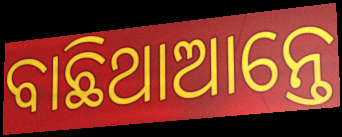
ବାଛିଥାଆନ୍ତେ